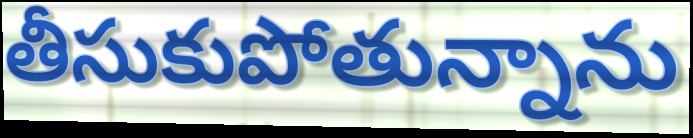
తీసుకుపోతున్నాను